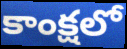
కాంక్షలో